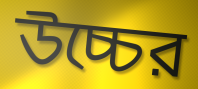
উচ্চের